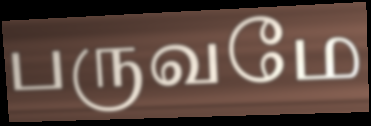
பருவமே